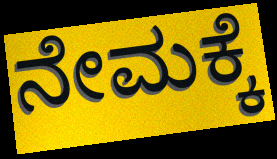
ನೇಮಕ್ಕೆ